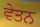
ਵੇਤਨ